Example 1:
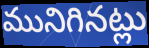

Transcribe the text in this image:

మునిగినట్లు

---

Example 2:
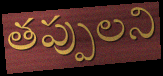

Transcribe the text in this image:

తప్పులని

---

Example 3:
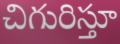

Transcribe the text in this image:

చిగురిస్తూ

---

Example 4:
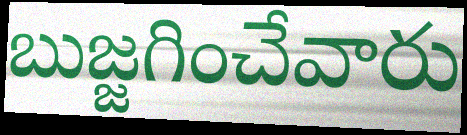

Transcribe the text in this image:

బుజ్జగించేవారు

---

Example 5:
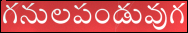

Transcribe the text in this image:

గనులపండువుగ